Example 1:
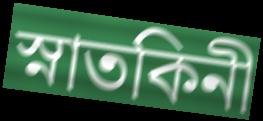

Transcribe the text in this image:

স্নাতকিনী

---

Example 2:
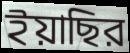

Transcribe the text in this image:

ইয়াছির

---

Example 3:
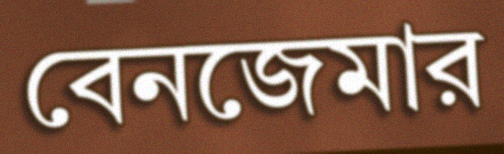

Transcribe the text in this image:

বেনজেমার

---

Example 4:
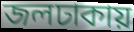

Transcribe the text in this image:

জলঢাকায়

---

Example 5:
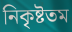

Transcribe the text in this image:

নিকৃষ্টতম